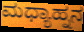
ಮಧ್ಯಾಹ್ನನ